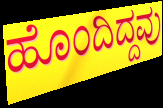
ಹೊಂದಿದ್ದವು